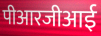
पीआरजीआई